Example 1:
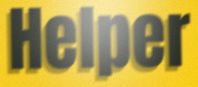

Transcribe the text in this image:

Helper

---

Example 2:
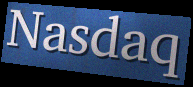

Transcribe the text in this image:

Nasdaq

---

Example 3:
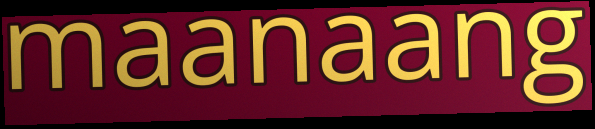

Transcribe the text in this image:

maanaang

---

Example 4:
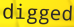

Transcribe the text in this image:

digged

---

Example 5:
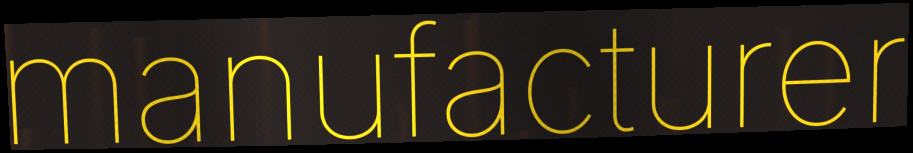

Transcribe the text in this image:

manufacturer